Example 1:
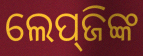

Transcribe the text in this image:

ଲେପ୍‌ଜିଙ୍କ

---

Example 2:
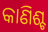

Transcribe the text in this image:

କାଣିଶ୍ଚ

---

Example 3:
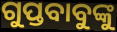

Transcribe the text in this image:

ଗୁପ୍ତବାବୁଙ୍କୁ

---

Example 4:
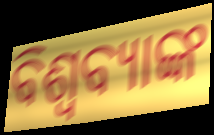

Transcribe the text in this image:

ବିଶ୍ୱବ୍ୟାଙ୍କ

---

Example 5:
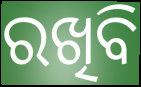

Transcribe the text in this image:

ରଖିବି